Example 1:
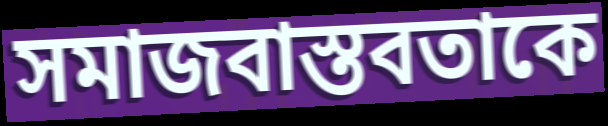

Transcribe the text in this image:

সমাজবাস্তবতাকে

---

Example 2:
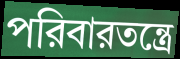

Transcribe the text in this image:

পরিবারতন্ত্রে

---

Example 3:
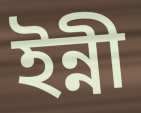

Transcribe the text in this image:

ইন্নী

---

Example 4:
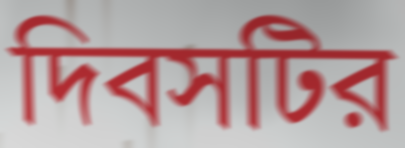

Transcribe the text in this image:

দিবসটির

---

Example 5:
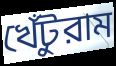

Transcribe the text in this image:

খেঁটুরাম